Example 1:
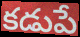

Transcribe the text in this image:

కడుపే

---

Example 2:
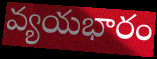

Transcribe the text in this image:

వ్యయభారం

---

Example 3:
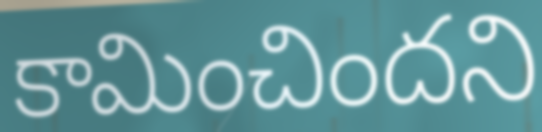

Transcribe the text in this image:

కామించిందని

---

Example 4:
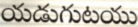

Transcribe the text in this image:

యడుగుటయు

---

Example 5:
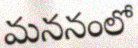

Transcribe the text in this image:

మననంలో